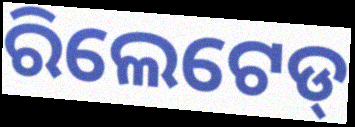
ରିଲେଟେଡ୍